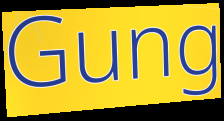
Gung